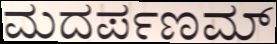
ಮದರ್ಪಣಮ್